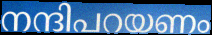
നന്ദിപറയണം